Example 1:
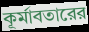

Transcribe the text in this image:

কূর্মাবতারের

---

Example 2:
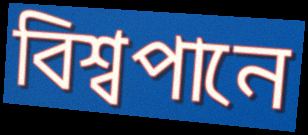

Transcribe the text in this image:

বিশ্বপানে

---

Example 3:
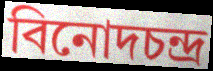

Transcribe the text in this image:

বিনোদচন্দ্র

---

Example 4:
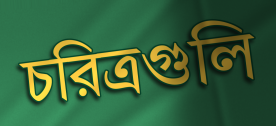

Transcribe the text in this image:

চরিত্রগুলি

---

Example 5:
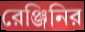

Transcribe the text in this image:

রেঞ্জিনির